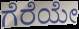
ಗೆರೆಯೇ